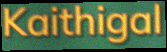
Kaithigal